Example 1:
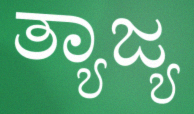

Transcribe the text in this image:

ತ್ಯಾಜ್ಯ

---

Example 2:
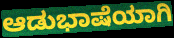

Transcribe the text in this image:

ಆಡುಭಾಷೆಯಾಗಿ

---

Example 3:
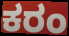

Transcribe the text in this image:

ಕರಂ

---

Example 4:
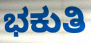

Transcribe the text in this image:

ಭಕುತಿ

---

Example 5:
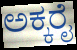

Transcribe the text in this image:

ಅಕ್ಕರೈ